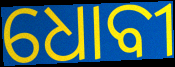
ଧୋବୀ